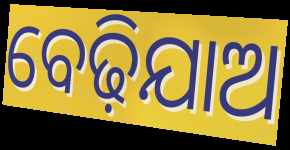
ବେଢ଼ିଯାଅ